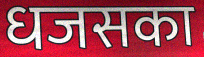
धजसका